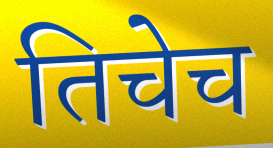
तिचेच